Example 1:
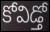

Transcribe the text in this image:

కోవిడ్తో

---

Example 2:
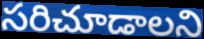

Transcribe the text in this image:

సరిచూడాలని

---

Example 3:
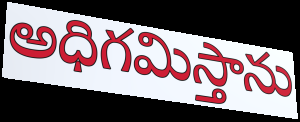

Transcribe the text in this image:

అధిగమిస్తాను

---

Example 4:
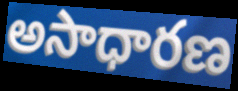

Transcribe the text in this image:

అసాధారణ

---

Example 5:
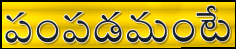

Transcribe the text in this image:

పంపడమంటే